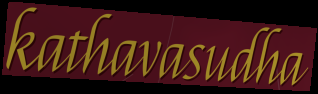
kathavasudha